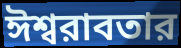
ঈশ্বরাবতার